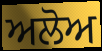
ਅਲੋਅ